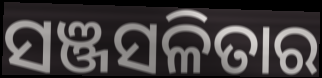
ସଞ୍ଜସଳିତାର